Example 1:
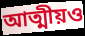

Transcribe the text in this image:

আত্মীয়ও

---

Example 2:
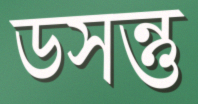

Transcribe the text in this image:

ডসন্তু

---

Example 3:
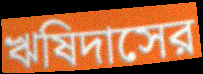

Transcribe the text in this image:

ঋষিদাসের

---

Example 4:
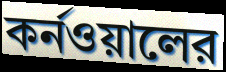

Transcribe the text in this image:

কর্নওয়ালের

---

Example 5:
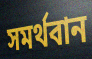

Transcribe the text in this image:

সমর্থবান